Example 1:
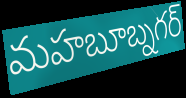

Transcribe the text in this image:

మహబూబ్నగర్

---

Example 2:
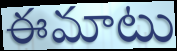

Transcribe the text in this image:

ఈమాటు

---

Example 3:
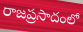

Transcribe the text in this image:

రాజప్రసాదంలో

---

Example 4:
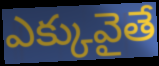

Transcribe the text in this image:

ఎక్కువైతే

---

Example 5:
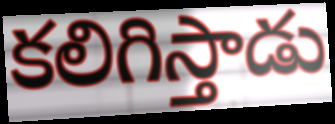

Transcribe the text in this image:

కలిగిస్తాడు